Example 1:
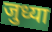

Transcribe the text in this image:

जुध्या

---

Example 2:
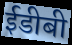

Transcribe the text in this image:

ईडीबी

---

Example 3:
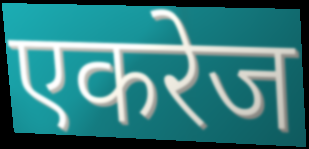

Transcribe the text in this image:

एकरेज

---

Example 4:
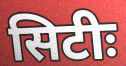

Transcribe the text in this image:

सिटीः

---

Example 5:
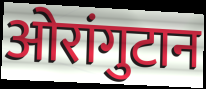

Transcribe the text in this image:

ओरांगुटान